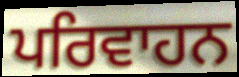
ਪਰਿਵਾਹਨ